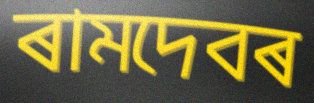
ৰামদেবৰ